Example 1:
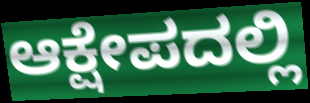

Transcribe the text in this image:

ಆಕ್ಷೇಪದಲ್ಲಿ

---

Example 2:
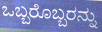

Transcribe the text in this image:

ಒಬ್ಬರೊಬ್ಬರನ್ನು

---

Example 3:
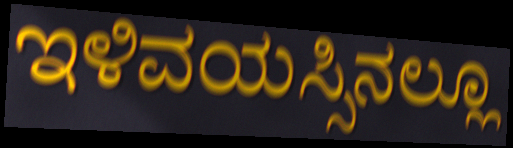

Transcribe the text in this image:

ಇಳಿವಯಸ್ಸಿನಲ್ಲೂ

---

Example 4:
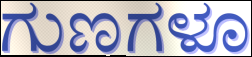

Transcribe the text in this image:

ಗುಣಗಳೂ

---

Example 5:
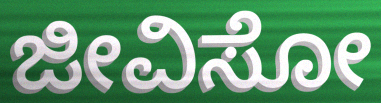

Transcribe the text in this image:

ಜೀವಿಸೋ